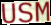
USM